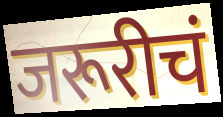
जरूरीचं